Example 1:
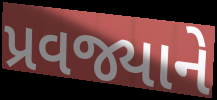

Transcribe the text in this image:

પ્રવજ્યાને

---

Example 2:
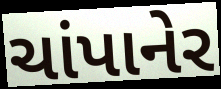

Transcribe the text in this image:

ચાંપાનેર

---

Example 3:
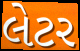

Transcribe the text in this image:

લેટર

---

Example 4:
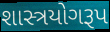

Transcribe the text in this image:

શાસ્ત્રયોગરૂપ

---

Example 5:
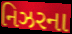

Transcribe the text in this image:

નિઝરના